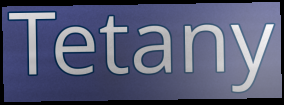
Tetany